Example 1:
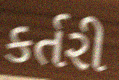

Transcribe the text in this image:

કર્તરી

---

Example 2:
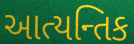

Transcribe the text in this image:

આત્યન્તિક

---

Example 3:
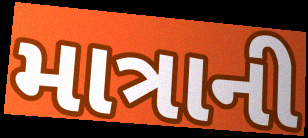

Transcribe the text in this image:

માત્રાની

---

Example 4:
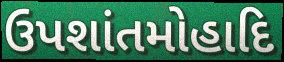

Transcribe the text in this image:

ઉપશાંતમોહાદિ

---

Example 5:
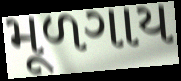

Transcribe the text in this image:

મૂળગાય